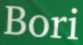
Bori